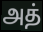
அத்